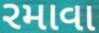
રમાવા